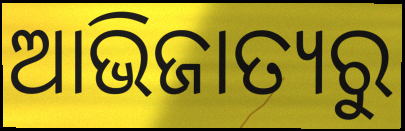
ଆଭିଜାତ୍ୟରୁ